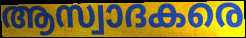
ആസ്വാദകരെ